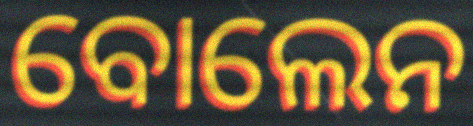
ବୋଲେନ